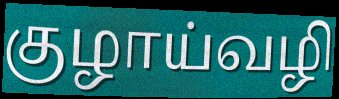
குழாய்வழி